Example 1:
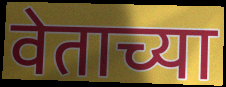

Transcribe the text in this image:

वेताच्या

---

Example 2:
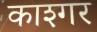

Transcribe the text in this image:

काश्गर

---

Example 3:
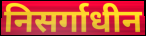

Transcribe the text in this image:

निसर्गाधीन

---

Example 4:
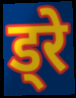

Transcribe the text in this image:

ड्रे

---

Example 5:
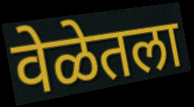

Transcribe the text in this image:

वेळेतला